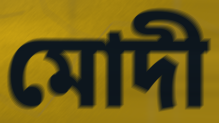
মোদী